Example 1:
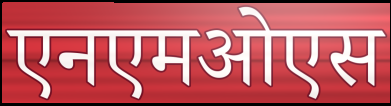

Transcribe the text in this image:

एनएमओएस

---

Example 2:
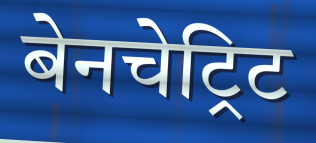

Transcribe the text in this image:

बेनचेट्रिट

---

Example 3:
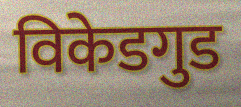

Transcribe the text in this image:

विकेडगुड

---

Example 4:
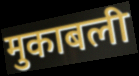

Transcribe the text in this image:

मुकाबली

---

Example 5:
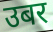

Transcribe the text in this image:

उबर